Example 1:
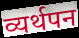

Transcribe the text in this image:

व्यर्थपन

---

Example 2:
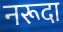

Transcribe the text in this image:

नरूदा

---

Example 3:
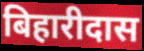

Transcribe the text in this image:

बिहारीदास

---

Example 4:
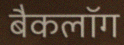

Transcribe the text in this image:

बैकलॉग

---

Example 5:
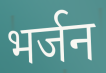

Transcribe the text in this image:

भर्जन